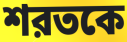
শরতকে